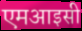
एमआइसी